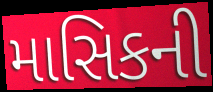
માસિકની